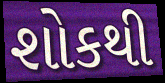
શોકથી